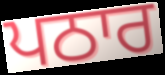
ਪਠਾਰ